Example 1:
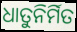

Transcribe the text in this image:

ଧାତୁନିର୍ମିତ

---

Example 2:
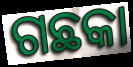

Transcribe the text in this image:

ଗଛକା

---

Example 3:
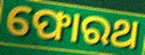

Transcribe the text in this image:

ଫୋରଥ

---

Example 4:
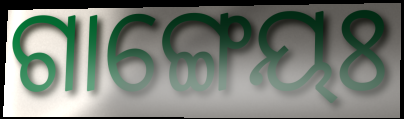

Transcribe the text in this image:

ଗାଙ୍ଗେୟଃ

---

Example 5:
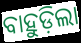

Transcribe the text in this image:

ବାହୁଡ଼ିଲା